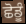
ਛੋਡੂੰ